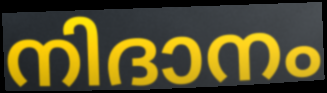
നിദാനം